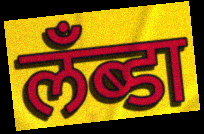
लँब्डा